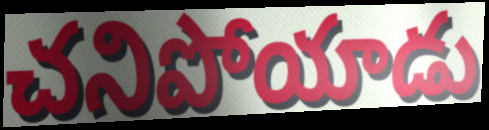
చనిపోయాడు